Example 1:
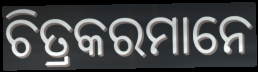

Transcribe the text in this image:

ଚିତ୍ରକରମାନେ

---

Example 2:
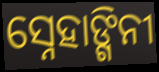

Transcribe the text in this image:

ସ୍ନେହାଙ୍ଗିନୀ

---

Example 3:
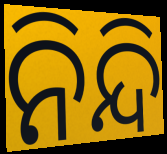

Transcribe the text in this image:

ନିନ୍ଦି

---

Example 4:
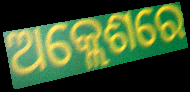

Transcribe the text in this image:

ଅକ୍ଲେଶରେ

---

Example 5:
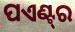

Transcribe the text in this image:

ପଏଣ୍ଟ୍‌ର